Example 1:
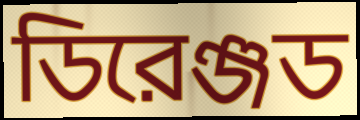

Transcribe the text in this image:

ডিরেঞ্জড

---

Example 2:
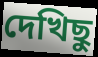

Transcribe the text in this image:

দেখিছু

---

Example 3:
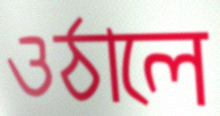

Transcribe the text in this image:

ওঠালে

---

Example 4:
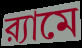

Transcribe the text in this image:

র‍্যামে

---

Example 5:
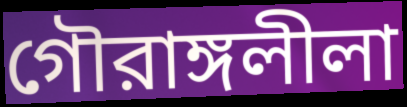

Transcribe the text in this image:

গৌরাঙ্গলীলা